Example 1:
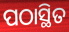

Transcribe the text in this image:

ପଠାସ୍ଥିତ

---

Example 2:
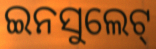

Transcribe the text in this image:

ଇନସୁଲେଟ୍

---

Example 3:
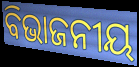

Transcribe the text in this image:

ବିଭାଜନୀୟ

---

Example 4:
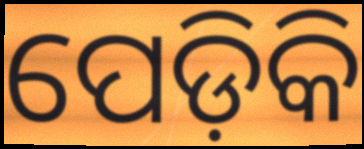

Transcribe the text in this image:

ପେଡ଼ିକି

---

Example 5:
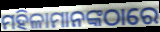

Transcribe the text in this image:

ମହିଳାମାନଙ୍କଠାରେ